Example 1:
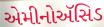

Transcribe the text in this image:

એમીનોઍસિડ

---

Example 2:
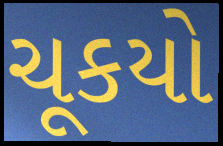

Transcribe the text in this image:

ચૂકયો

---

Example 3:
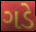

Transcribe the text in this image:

ગડે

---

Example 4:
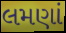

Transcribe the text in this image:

લમણાં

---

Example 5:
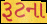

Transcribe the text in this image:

રૂટના